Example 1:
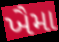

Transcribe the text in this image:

ખૈમા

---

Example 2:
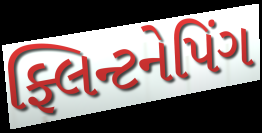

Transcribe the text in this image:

ફ્લિન્ટનેપિંગ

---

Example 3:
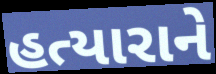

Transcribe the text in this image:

હત્યારાને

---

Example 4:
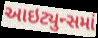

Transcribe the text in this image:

આઇટ્યુન્સમાં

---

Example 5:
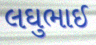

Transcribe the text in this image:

લઘુભાઈ